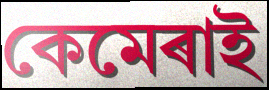
কেমেৰাই